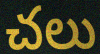
చలు